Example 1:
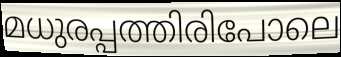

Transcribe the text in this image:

മധുരപ്പത്തിരിപോലെ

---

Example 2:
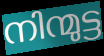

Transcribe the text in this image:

നിന്മുട്ട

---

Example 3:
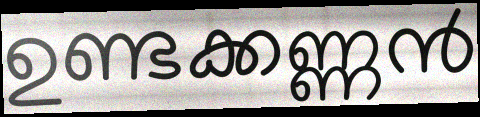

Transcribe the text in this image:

ഉണ്ടക്കണ്ണൻ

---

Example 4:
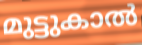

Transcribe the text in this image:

മുട്ടുകാൽ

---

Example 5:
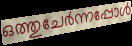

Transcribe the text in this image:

ഒത്തുചേർന്നപ്പോൾ